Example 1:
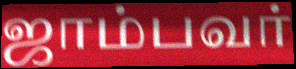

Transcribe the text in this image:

ஜாம்பவர்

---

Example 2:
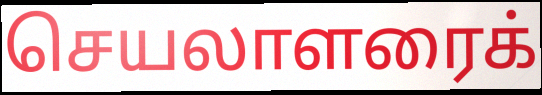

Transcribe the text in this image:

செயலாளரைக்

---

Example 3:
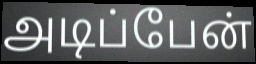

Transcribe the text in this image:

அடிப்பேன்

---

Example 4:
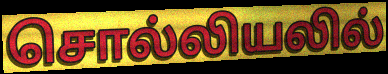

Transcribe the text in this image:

சொல்லியலில்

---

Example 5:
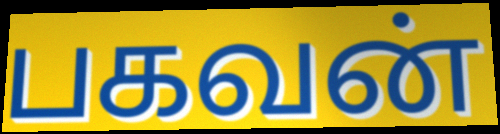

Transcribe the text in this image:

பகவன்